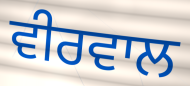
ਵੀਰਵਾਲ